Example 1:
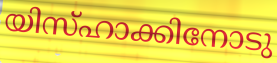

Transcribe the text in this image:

യിസ്ഹാക്കിനോടു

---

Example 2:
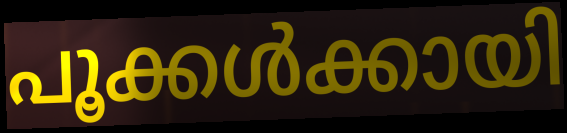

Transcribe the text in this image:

പൂക്കൾക്കായി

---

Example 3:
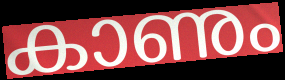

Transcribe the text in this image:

കാണും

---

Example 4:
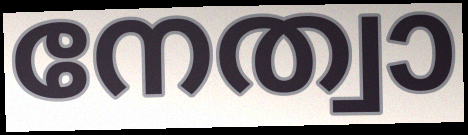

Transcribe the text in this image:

നേത്വാ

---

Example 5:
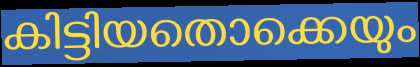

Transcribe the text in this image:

കിട്ടിയതൊക്കെയും